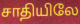
சாதியிலே